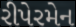
રીપેરમેન